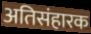
अतिसंहारक